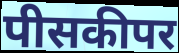
पीसकीपर